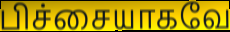
பிச்சையாகவே